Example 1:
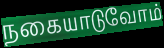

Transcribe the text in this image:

நகையாடுவோம்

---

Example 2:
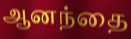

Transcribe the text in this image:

ஆனந்தை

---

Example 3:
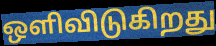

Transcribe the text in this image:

ஒளிவிடுகிறது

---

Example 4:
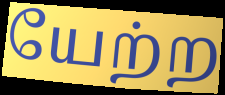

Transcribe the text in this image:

யேற்ற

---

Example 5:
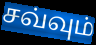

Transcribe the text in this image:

சவ்வும்